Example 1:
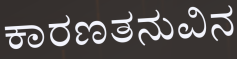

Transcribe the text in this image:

ಕಾರಣತನುವಿನ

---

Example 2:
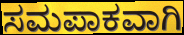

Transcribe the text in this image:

ಸಮಪಾಕವಾಗಿ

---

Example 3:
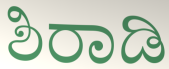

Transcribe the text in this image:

ಶಿರಾಡಿ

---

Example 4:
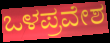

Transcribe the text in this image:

ಒಳಪ್ರವೇಶ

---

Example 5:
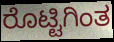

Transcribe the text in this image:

ರೊಟ್ಟಿಗಿಂತ